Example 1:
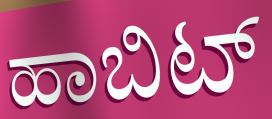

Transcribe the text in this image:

ಹಾಬಿಟ್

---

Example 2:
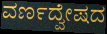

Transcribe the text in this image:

ವರ್ಣದ್ವೇಷದ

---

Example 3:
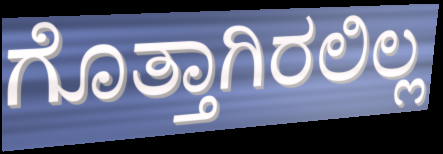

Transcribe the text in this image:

ಗೊತ್ತಾಗಿರಲಿಲ್ಲ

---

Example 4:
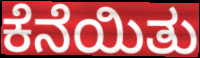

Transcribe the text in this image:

ಕೆನೆಯಿತು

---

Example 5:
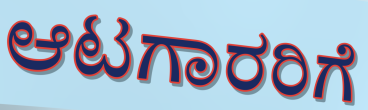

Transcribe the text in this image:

ಆಟಗಾರರಿಗೆ